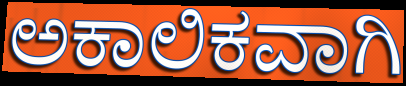
ಅಕಾಲಿಕವಾಗಿ